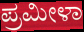
ಪ್ರಮೀಳಾ